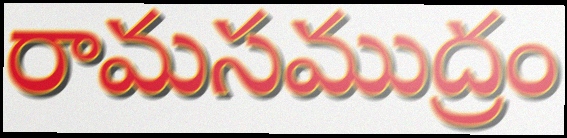
రామసముద్రం